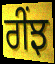
ਰੀਂਝ